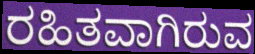
ರಹಿತವಾಗಿರುವ